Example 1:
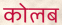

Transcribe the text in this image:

कोलब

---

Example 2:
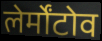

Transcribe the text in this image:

लेर्मोंटोव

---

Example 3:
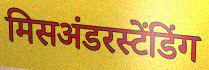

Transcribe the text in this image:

मिसअंडरस्टेंडिंग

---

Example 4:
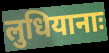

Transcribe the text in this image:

लुधियानाः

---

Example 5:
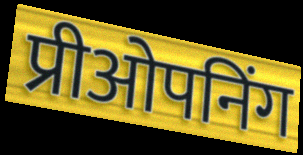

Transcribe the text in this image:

प्रीओपनिंग